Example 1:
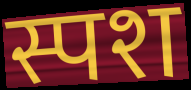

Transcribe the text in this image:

स्पश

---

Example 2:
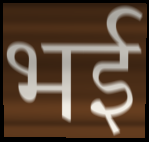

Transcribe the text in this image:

भई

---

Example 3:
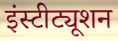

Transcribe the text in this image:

इंस्टीट्यूशन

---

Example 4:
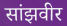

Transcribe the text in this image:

सांझवीर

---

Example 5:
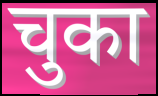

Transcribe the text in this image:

चुका